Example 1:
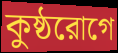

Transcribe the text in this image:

কুষ্ঠরোগে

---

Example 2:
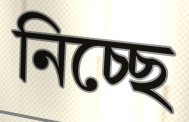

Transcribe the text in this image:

নিচ্ছে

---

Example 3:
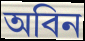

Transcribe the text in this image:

অবিন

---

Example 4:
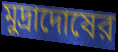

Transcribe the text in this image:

মুদ্রাদোষের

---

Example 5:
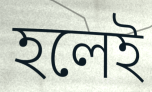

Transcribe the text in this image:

হলেই